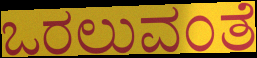
ಒರಲುವಂತೆ